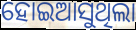
ହୋଇଆସୁଥିଲା